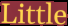
Little